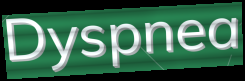
Dyspnea